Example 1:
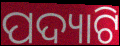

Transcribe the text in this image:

ପଦ୍ୟାଟି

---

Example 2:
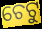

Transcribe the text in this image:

ଚେଟୁ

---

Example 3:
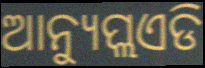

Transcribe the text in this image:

ଆନ୍ୟୁପ୍ଲଏଡି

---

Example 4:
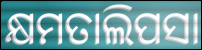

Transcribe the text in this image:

କ୍ଷମତାଲିପସା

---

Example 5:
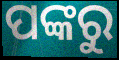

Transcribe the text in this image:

ପଙ୍କରୁ